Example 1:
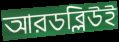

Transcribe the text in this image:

আরডব্লিউই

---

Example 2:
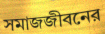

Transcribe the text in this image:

সমাজজীবনের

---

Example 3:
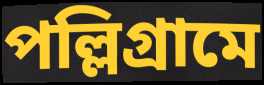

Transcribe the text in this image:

পল্লিগ্রামে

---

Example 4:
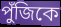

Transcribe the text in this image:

পুঁজিকে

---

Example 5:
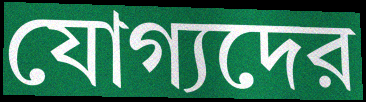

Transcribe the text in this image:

যোগ্যদের